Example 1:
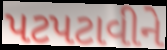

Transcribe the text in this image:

પટપટાવીને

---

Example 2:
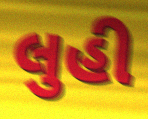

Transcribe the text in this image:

લુહી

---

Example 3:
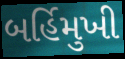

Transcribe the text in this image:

બર્હિમુખી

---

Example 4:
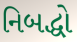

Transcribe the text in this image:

નિબદ્ધો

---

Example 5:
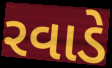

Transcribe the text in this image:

રવાડે